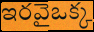
ఇరవైఒక్క